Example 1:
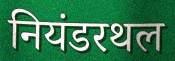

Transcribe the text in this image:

नियंडरथल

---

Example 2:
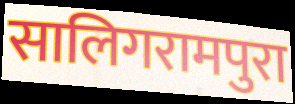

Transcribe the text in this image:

सालिगरामपुरा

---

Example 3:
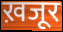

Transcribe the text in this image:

ख़जूर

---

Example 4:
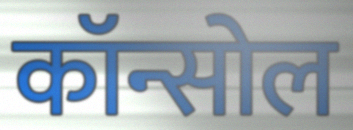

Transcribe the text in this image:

कॉन्सोल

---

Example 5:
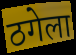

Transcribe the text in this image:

ठगेला